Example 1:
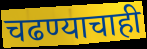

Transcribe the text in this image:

चढण्याचाही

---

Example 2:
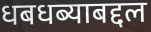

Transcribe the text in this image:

धबधब्याबद्दल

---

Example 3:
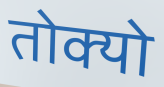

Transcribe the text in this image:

तोक्यो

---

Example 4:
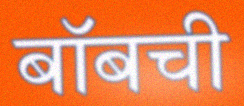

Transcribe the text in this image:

बॉबची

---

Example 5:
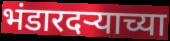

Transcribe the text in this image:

भंडारदर्‍याच्या